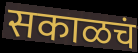
सकाळचं